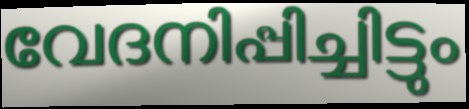
വേദനിപ്പിച്ചിട്ടും